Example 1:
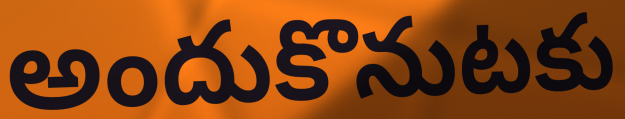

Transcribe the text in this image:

అందుకొనుటకు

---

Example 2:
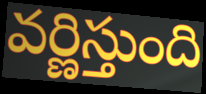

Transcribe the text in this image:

వర్ణిస్తుంది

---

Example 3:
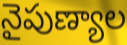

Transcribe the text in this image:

నైపుణ్యాల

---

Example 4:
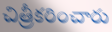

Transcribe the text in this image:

చిత్రీకరించారు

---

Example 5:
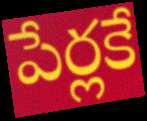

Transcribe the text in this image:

పేర్లకే